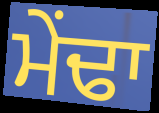
ਮੇਂਢਾ